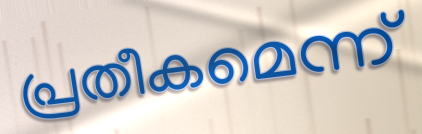
പ്രതീകമെന്ന്